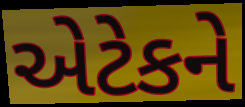
એટેકને